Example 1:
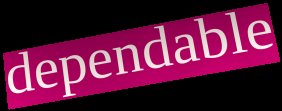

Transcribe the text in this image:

dependable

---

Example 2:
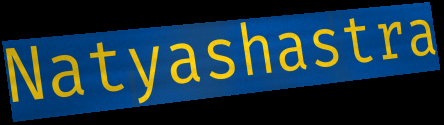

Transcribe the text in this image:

Natyashastra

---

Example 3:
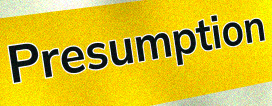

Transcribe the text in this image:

Presumption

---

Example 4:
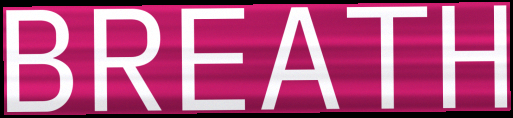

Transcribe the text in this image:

BREATH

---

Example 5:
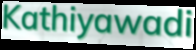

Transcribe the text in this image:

Kathiyawadi